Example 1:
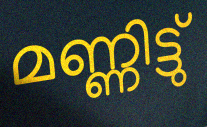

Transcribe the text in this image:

മണ്ണിട്ടു്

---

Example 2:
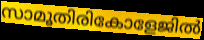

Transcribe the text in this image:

സാമൂതിരികോളേജിൽ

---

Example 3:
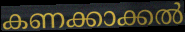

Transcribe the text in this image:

കണക്കാക്കൽ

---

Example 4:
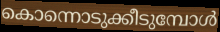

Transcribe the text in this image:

കൊന്നൊടുക്കീടുമ്പോൾ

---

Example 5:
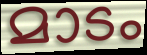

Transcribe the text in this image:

മാടം